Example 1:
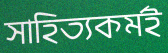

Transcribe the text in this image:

সাহিত্যকর্মই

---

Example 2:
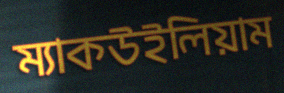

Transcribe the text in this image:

ম্যাকউইলিয়াম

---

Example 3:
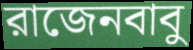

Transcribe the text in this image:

রাজেনবাবু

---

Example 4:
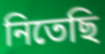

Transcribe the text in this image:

নিতেছি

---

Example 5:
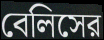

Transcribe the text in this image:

বেলিসের